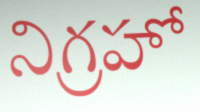
నిగ్రహో